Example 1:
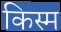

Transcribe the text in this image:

किस्म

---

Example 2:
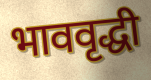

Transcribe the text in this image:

भाववृद्धी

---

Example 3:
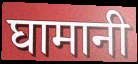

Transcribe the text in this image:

घामानी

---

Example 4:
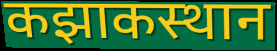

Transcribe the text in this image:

कझाकस्थान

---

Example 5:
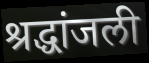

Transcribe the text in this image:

श्रद्धांजली